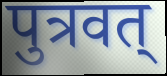
पुत्रवत्